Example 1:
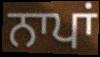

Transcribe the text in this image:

ਨਾਪਾਂ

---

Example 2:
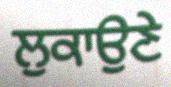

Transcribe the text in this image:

ਲੁਕਾਉਣੇ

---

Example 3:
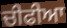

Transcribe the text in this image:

ਚੀਫੀਆ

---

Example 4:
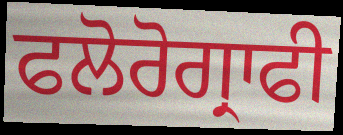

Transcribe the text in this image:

ਫਲੋਰੋਗ੍ਰਾਫੀ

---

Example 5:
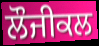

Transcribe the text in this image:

ਲੌਜੀਕਲ